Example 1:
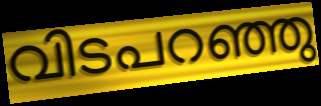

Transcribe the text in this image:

വിടപറഞ്ഞു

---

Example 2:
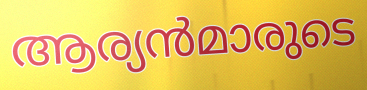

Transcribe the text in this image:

ആര്യൻമാരുടെ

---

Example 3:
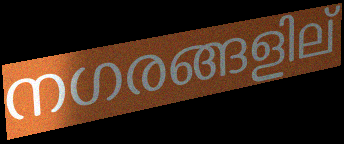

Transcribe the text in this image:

നഗരങ്ങളില്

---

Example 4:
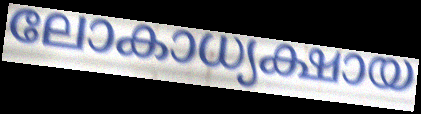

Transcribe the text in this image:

ലോകാധ്യക്ഷായ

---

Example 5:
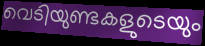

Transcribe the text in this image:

വെടിയുണ്ടകളുടെയും